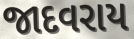
જાદવરાય